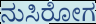
ನುಸಿರೋಗ